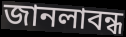
জানলাবন্ধ